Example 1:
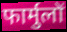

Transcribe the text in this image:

फार्मुलों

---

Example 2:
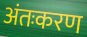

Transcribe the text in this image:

अंतःकरण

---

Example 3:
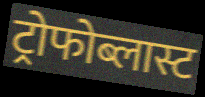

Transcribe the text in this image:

ट्रोफोब्लास्ट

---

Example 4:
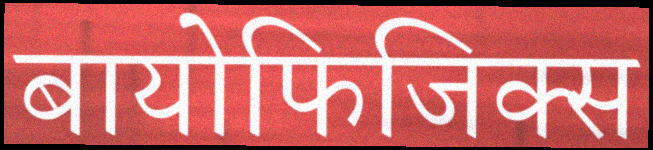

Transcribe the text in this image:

बायोफिजिक्स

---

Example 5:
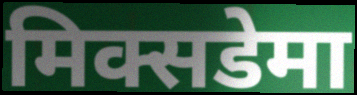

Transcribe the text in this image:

मिक्सडेमा